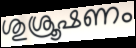
ശുശ്രൂഷണം